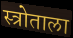
स्त्रोताला